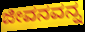
ಜೀವನವನ್ನ